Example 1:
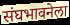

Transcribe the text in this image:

संघभावनेला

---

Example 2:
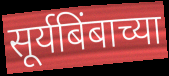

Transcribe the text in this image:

सूर्यबिंबाच्या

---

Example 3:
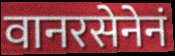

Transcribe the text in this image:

वानरसेनेनं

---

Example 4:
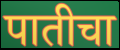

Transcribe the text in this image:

पातीचा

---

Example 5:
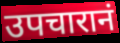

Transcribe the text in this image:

उपचारानं